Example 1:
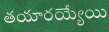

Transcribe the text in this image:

తయారయ్యేయి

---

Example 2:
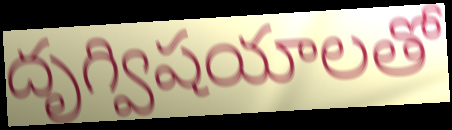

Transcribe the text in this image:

దృగ్విషయాలతో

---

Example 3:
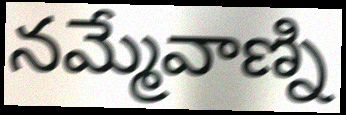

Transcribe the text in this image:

నమ్మేవాణ్ని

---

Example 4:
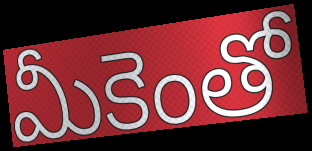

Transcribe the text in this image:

మీకెంతో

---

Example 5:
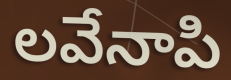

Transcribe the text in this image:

లవేనాపి